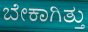
ಬೇಕಾಗಿತ್ತು